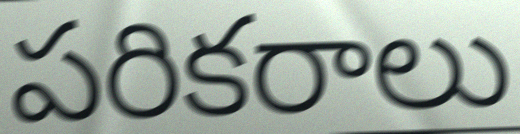
పరికరాలు